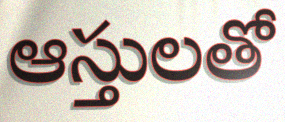
ఆస్తులతో